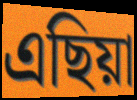
এছিয়া